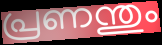
പ്രണന്തും